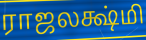
ராஜலக்ஷ்மி